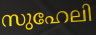
സുഹേലി